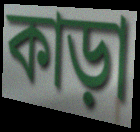
কাড়া